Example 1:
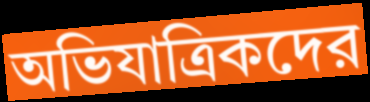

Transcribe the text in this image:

অভিযাত্রিকদের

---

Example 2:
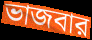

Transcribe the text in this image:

ভাজবার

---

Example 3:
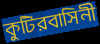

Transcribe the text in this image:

কুটিরবাসিনী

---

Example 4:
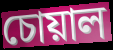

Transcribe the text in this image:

চোয়াল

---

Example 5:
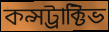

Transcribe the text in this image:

কন্সট্রাক্টিভ